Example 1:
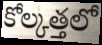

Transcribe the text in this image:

కోల్కత్తలో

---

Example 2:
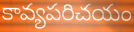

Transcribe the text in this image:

కావ్యపరిచయం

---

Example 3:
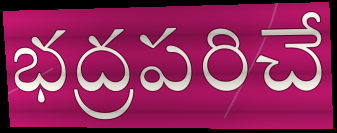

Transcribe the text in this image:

భద్రపరిచే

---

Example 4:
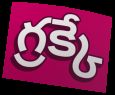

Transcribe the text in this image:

గ్రక్కే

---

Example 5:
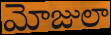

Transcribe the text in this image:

మోజులా